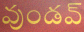
వుండవ్